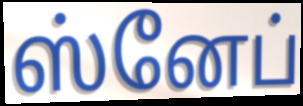
ஸ்னேப்